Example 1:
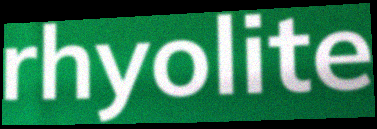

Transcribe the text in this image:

rhyolite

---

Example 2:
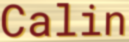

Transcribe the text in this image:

Calin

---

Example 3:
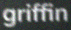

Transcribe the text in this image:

griffin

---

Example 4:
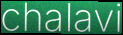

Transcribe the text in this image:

chalavi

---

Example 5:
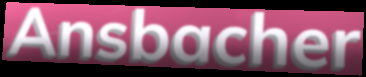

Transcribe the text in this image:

Ansbacher